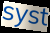
syst